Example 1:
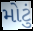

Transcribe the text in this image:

મોટું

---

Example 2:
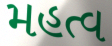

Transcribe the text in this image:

મહત્વ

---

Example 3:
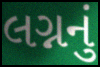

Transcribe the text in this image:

લગ્નનું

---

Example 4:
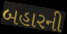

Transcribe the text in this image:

બહારની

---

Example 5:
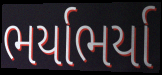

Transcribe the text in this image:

ભર્યાભર્યા